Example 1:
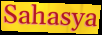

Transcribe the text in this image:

Sahasya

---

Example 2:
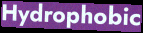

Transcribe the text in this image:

Hydrophobic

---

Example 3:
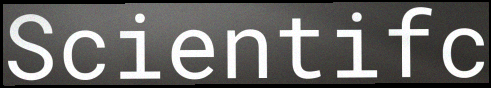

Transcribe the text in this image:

Scientifc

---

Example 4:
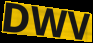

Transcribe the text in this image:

DWV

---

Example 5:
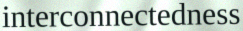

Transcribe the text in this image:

interconnectedness